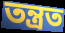
তন্ত্ৰত